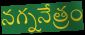
నగ్ననేత్రం